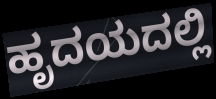
ಹೃದಯದಲ್ಲಿ